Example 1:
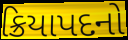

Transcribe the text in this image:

ક્રિયાપદનો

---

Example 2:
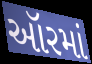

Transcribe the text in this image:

ઑરમાં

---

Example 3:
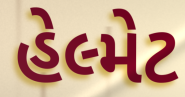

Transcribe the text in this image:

હેલ્મેટ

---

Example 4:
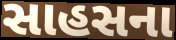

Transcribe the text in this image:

સાહસના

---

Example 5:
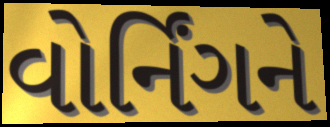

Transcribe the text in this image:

વોર્નિંગને